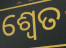
ଶ୍ଵେତ